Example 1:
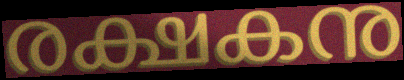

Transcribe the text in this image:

രക്ഷകനു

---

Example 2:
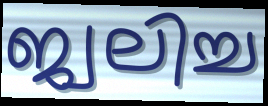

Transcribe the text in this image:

ജ്വലിച്ച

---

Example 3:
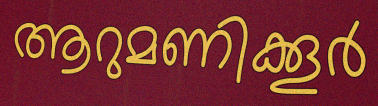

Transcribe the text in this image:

ആറുമണിക്കൂർ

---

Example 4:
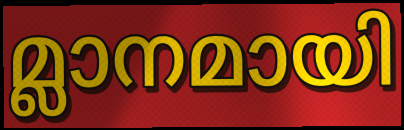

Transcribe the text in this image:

മ്ലാനമായി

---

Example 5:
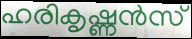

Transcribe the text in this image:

ഹരികൃഷ്ണൻസ്